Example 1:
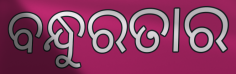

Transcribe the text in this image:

ବନ୍ଧୁରତାର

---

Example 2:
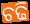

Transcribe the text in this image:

ଚଢି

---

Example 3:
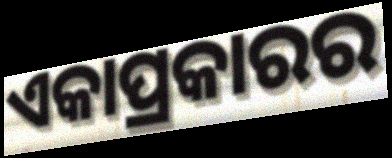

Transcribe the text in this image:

ଏକାପ୍ରକାରର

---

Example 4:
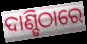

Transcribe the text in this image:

ଦାଣ୍ଡିଠାରେ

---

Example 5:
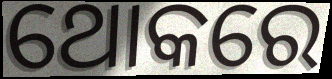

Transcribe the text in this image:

ଥୋକରେ